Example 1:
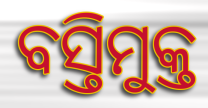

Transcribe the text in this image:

ବସ୍ତିମୁକ୍ତ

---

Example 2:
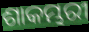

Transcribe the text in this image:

ଶାକମ୍ଭରୀ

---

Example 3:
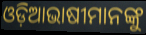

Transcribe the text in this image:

ଓଡ଼ିଆଭାଷୀମାନଙ୍କୁ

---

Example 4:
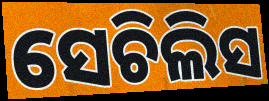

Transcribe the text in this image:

ସେଚିଲିସ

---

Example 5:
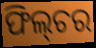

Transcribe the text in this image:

ଫିଲ୍‌ଚର